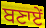
ਬਣਾਏਂ